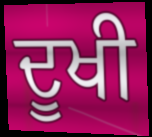
ਦੂਖੀ